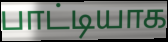
பாட்டியாக